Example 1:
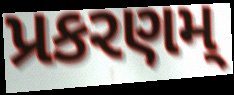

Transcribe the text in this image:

પ્રકરણમ્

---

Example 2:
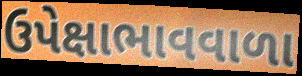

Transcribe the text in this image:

ઉપેક્ષાભાવવાળા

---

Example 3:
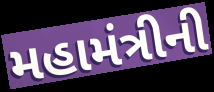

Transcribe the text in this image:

મહામંત્રીની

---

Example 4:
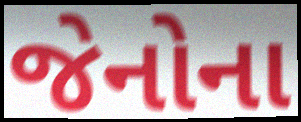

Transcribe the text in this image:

જેનોના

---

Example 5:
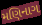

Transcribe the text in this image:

મણિનાગ